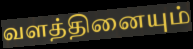
வளத்தினையும்